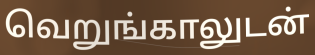
வெறுங்காலுடன்